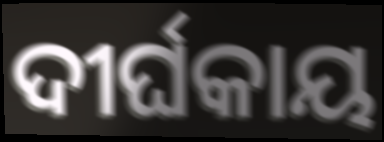
ଦୀର୍ଘକାୟ